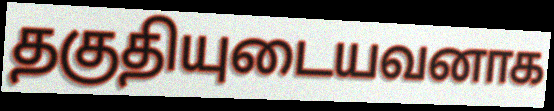
தகுதியுடையவனாக